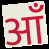
आँ